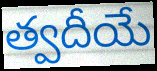
త్వదీయే